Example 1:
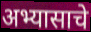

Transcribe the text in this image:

अभ्यासाचे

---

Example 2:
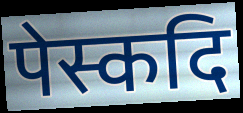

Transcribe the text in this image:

पेस्कदि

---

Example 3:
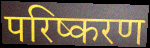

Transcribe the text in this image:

परिष्करण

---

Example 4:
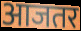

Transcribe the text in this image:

आजतर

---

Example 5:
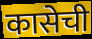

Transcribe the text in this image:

कासेची